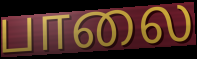
பாலை